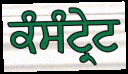
ਕੰਸੰਟ੍ਰੇਟ